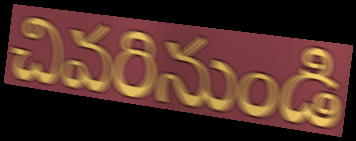
చివరినుండి